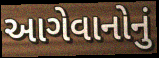
આગેવાનોનું